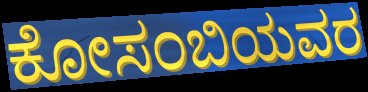
ಕೋಸಂಬಿಯವರ